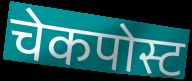
चेकपोस्ट